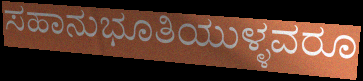
ಸಹಾನುಭೂತಿಯುಳ್ಳವರೂ